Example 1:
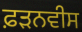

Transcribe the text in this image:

ਫ਼ੜਨਵੀਸ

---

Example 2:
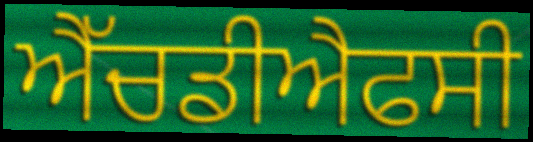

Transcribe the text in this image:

ਐੱਚਡੀਐਫਸੀ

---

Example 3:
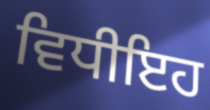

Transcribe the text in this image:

ਵਿਧੀਇਹ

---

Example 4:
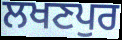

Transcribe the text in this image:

ਲਖਣਪੁਰ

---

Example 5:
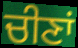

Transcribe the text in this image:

ਚੀਣਾਂ